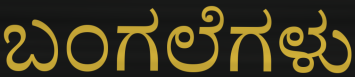
ಬಂಗಲೆಗಳು